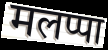
मलप्पा